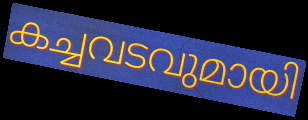
കച്ചവടവുമായി